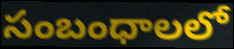
సంబంధాలలో